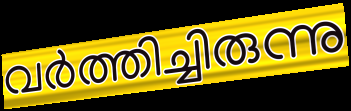
വർത്തിച്ചിരുന്നു